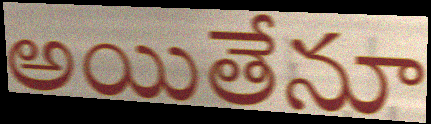
అయితేనూ